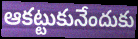
ఆకట్టుకునేందుకు